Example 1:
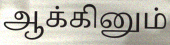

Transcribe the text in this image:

ஆக்கினும்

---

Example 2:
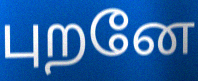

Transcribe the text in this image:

புறனே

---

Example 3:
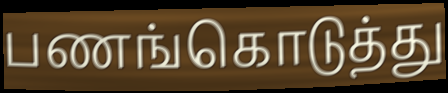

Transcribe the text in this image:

பணங்கொடுத்து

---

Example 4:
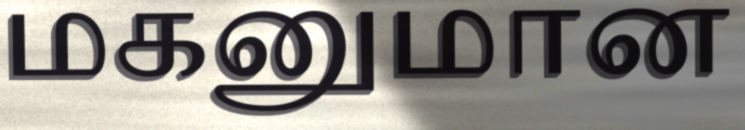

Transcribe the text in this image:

மகனுமான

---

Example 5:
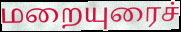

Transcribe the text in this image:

மறையுரைச்